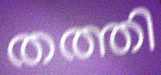
തത്തി